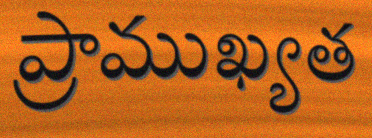
ప్రాముఖ్యత